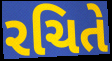
રચિતે